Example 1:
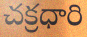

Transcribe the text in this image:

చక్రధారి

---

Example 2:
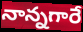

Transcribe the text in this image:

నాన్నగారే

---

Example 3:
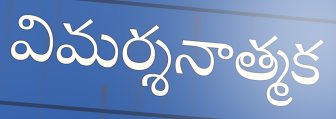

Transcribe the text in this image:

విమర్శనాత్మక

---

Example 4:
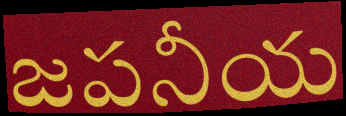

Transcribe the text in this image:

జపనీయ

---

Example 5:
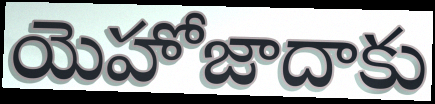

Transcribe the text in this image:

యెహోజాదాకు